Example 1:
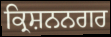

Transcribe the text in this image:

ਕ੍ਰਿਸ਼ਨਨਗਰ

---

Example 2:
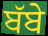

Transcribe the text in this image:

ਬੱਬੇ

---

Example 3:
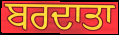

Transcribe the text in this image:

ਬਰਦਾਤਾ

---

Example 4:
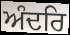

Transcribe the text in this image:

ਅੰਦਰਿ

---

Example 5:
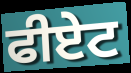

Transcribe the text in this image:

ਫੀਏਟ